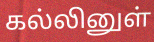
கல்லினுள்